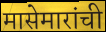
मासेमारांची